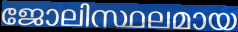
ജോലിസ്ഥലമായ